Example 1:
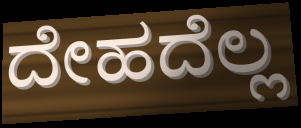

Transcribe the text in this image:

ದೇಹದೆಲ್ಲ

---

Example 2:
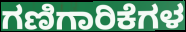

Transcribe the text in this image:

ಗಣಿಗಾರಿಕೆಗಳ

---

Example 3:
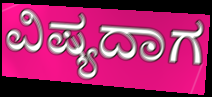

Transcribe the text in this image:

ವಿಷ್ಯದಾಗ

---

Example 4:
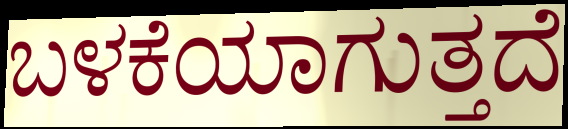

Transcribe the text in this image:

ಬಳಕೆಯಾಗುತ್ತದೆ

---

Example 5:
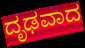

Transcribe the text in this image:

ದೃಢವಾದ